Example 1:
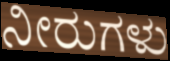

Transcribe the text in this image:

ನೀರುಗಳು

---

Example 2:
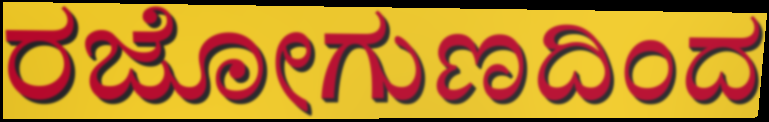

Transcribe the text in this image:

ರಜೋಗುಣದಿಂದ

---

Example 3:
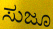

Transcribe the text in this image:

ಸುಜೂ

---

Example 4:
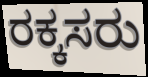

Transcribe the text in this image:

ರಕ್ಕಸರು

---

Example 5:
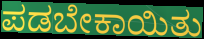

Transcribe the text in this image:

ಪಡಬೇಕಾಯಿತು